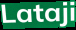
Lataji